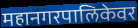
महानगरपालिकेवर